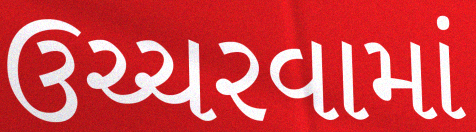
ઉચ્ચરવામાં